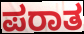
ಪರಾತ